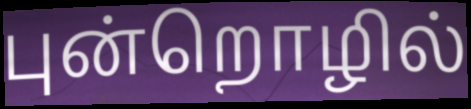
புன்றொழில்